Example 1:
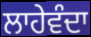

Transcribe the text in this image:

ਲਾਹੇਵੰਦਾ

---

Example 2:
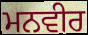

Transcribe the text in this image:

ਮਨਵੀਰ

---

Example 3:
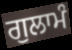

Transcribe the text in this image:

ਗੁਲਾਮੰ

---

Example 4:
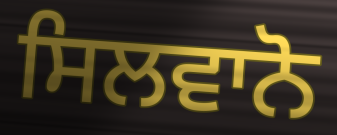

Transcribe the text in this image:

ਸਿਲਵਾਨੋ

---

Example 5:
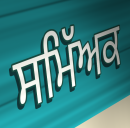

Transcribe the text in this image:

ਸਮਿੱਅਕ